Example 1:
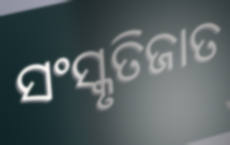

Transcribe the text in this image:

ସଂସ୍କୃତିଜାତ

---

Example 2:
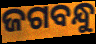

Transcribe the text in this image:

ଜଗବନ୍ଧୁ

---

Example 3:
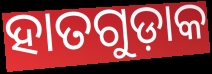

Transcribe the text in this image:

ହାତଗୁଡ଼ାକ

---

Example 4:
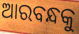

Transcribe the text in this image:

ଆରବନ୍ଧକୁ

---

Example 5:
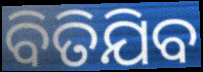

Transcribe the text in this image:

ବିତିଯିବ